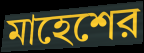
মাহেশের